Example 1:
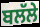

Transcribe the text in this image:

ਬਲੱਲੇ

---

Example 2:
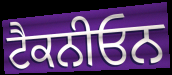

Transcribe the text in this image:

ਟੈਕਨੀਓਨ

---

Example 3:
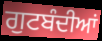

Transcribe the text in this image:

ਗੁਟਬੰਦੀਆਂ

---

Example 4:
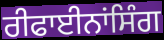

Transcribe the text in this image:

ਰੀਫਾਈਨਾਂਸਿੰਗ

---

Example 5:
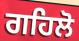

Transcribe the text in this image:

ਗਹਿਲੋ